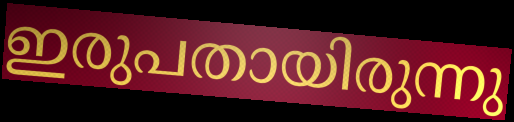
ഇരുപതായിരുന്നു